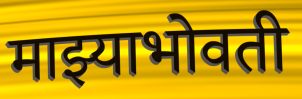
माझ्याभोवती